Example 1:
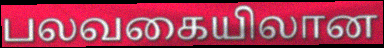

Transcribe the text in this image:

பலவகையிலான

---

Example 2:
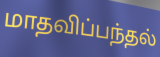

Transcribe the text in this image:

மாதவிப்பந்தல்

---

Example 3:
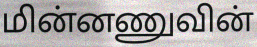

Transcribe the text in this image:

மின்னணுவின்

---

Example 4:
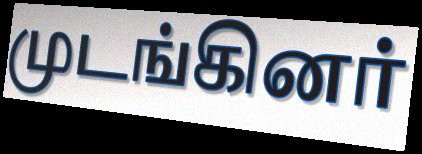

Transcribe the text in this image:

முடங்கினர்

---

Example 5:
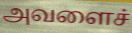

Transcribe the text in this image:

அவளைச்